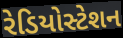
રેડિયોસ્ટેશન